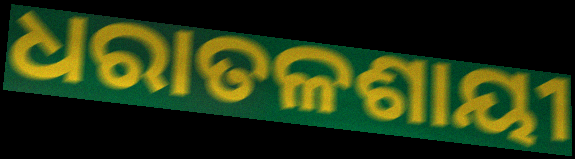
ଧରାତଳଶାୟୀ